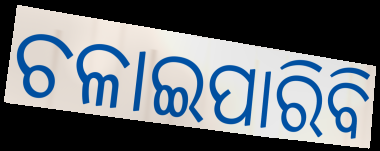
ଚଳାଇପାରିବି